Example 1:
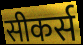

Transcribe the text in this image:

सीकर्स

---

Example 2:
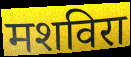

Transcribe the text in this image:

मशविरा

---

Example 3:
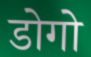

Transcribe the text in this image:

डोगो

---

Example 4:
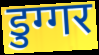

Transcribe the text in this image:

डुग्गर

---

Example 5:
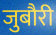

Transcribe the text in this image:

जुबौरी